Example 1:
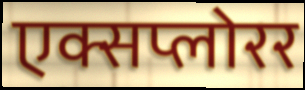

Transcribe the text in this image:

एक्सप्लोरर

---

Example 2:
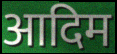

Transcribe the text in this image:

आदिम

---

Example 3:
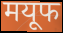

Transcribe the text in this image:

मयूफ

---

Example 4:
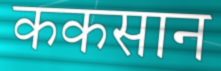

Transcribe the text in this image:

ककसान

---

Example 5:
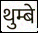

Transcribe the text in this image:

थुम्बे